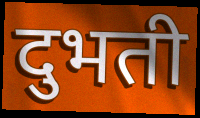
दुभती